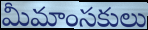
మీమాంసకులు